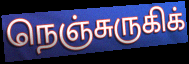
நெஞ்சுருகிக்